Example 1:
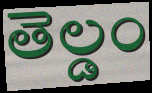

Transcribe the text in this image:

తెల్డం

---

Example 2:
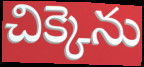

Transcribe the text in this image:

చిక్కెను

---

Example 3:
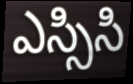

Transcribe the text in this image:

ఎస్సిసి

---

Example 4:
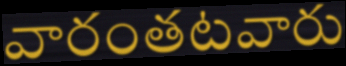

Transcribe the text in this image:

వారంతటవారు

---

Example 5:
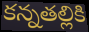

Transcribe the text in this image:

కన్నతల్లికి